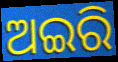
ଅଇରି